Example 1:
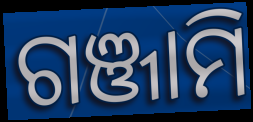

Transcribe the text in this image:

ଗଞ୍ଜାମି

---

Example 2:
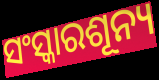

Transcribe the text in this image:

ସଂସ୍କାରଶୂନ୍ୟ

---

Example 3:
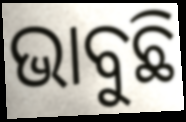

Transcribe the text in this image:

ଭାବୁଛି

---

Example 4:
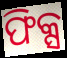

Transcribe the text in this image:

ଫିକ୍ସ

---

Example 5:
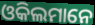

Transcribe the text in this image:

ଓକିଲମାନେ